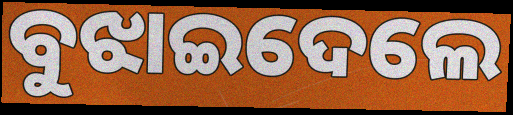
ବୁଝାଇଦେଲେ